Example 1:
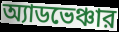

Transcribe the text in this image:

অ্যাডভেঞ্চার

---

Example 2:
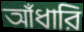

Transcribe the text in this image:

আঁধারি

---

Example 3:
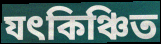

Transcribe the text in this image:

যৎকিঞ্চিত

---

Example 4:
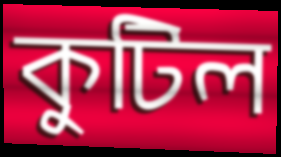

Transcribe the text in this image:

কুটিল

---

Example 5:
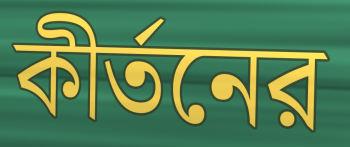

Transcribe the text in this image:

কীর্তনের